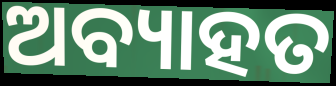
ଅବ୍ୟାହତ